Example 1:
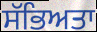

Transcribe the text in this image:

ਸੱਭਿਅਤਾ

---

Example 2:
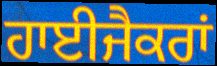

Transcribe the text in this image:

ਹਾਈਜੈਕਰਾਂ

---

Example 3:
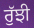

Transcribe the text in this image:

ਰੁੱਝੀ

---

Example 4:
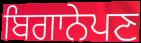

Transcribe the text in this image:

ਬਿਗਾਨੇਪਣ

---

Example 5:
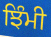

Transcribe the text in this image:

ਝਿੰਮੀ